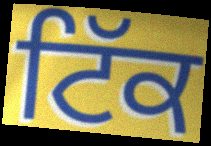
ਟਿੱਕ